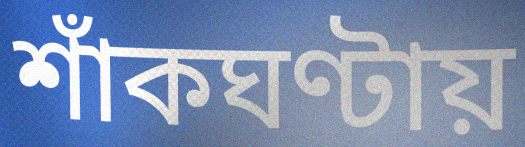
শাঁকঘণ্টায়